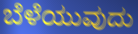
ಬೆಳೆಯುವುದು